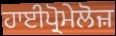
ਹਾਈਪ੍ਰੋਮੇਲੋਜ਼